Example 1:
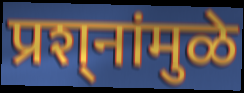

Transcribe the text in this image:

प्रश्नांमुळे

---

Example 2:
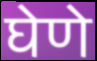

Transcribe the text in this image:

घेणे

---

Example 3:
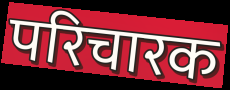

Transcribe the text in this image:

परिचारक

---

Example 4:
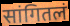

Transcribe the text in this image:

सांगितलं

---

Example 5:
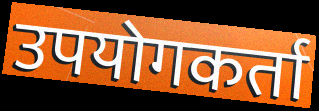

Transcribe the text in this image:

उपयोगकर्ता